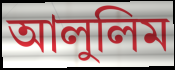
আলুলিম